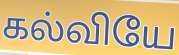
கல்வியே